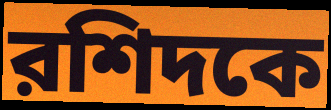
রশিদকে